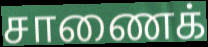
சாணைக்